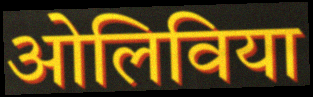
ओलिविया